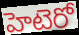
హెటెరో